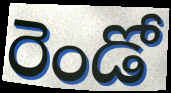
రెండో